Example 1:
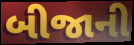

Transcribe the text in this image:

બીજાની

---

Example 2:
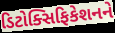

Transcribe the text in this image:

ડિટોક્સિફિકેશનને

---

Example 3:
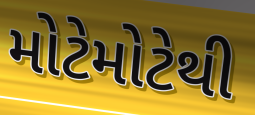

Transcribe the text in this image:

મોટેમોટેથી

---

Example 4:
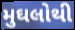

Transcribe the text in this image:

મુઘલોથી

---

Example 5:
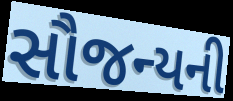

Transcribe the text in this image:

સૌજન્યની